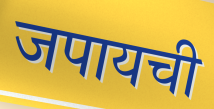
जपायची